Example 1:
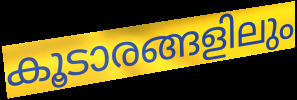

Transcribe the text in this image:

കൂടാരങ്ങളിലും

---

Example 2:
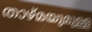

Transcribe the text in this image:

താഴ്മയുമുള്ള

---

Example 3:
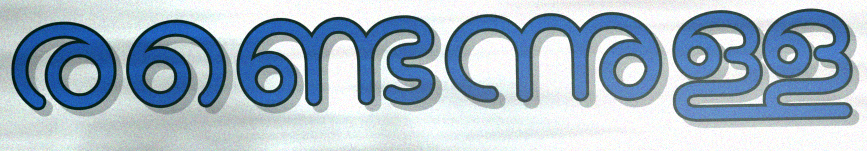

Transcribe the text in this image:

രണ്ടെന്നുള്ള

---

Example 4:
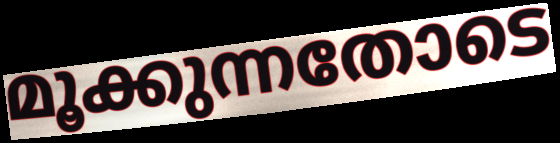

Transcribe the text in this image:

മൂക്കുന്നതോടെ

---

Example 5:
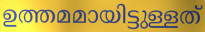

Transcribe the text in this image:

ഉത്തമമായിട്ടുള്ളത്